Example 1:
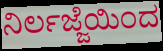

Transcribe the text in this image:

ನಿರ್ಲಜ್ಜೆಯಿಂದ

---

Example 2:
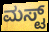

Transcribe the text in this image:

ಮಸ್ಟ್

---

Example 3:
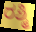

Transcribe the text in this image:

ರಶ್ಮಿ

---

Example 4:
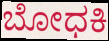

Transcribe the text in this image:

ಬೋಧಕಿ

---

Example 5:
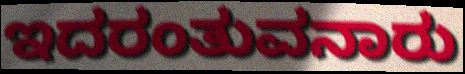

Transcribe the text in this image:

ಇದರಂತುವನಾರು